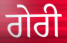
ਗੇਰੀ